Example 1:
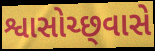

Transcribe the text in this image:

શ્વાસોચ્છ્‍વાસે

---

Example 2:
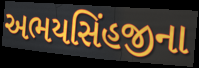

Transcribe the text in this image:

અભયસિંહજીના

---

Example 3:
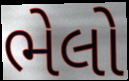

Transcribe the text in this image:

ભેલો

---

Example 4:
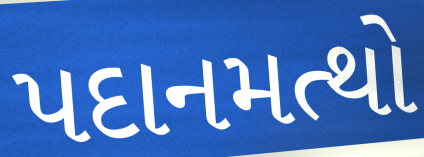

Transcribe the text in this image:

પદાનમત્થો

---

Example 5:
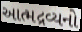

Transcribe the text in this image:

આત્મદ્રવ્યનો